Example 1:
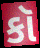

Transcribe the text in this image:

કૉ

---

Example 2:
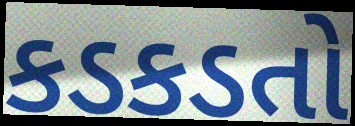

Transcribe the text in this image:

કડકડતો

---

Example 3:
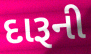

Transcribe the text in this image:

દારૂની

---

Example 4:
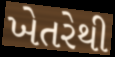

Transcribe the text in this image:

ખેતરેથી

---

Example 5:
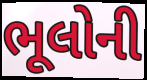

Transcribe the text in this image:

ભૂલોની